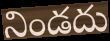
నిండదు